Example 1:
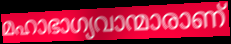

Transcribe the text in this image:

മഹാഭാഗ്യവാന്മാരാണ്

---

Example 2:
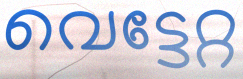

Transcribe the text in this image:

വെട്ടേറ്റ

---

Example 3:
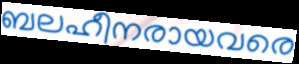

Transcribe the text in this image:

ബലഹീനരായവരെ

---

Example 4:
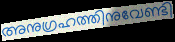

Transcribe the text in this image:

അനുഗ്രഹത്തിനുവേണ്ടി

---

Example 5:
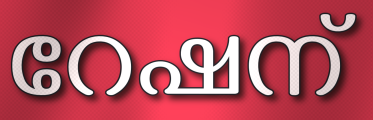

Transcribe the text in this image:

റേഷന്